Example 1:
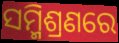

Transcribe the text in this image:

ସମ୍ମିଶ୍ରଣରେ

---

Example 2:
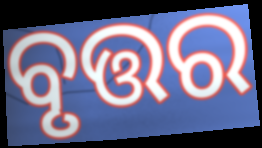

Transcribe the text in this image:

ବୃତ୍ତର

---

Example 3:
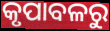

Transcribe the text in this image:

କୃପାବଳରୁ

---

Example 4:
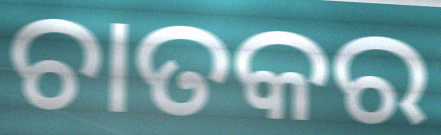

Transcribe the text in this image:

ଚାତକର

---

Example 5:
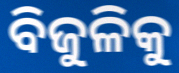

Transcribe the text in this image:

ବିଜୁଳିକୁ